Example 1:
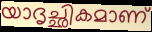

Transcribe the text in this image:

യാദൃച്ഛികമാണ്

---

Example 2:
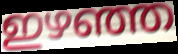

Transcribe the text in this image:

ഇഴഞ്ഞ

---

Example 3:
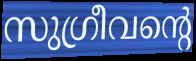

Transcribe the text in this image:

സുഗ്രീവന്റെ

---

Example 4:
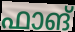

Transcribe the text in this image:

ഫാങ്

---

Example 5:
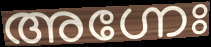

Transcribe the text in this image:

അഗ്നേഃ